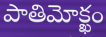
పాతిమోక్ఖం